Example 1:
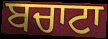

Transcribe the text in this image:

ਬਚਾਟਾ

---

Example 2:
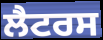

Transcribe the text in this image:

ਲੈਟਰਸ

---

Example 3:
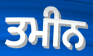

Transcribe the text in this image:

ਤਮੀਨ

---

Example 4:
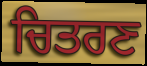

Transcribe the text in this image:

ਚਿਤਰਣ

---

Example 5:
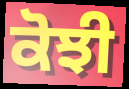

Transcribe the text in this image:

ਕੋਝੀ